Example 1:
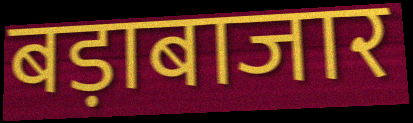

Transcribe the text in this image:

बड़ाबाजार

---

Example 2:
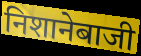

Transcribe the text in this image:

निशानेबाजी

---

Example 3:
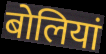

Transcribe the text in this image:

बोलियां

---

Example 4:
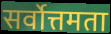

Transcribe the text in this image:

सर्वोत्तमता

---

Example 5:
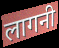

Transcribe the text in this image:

लागनी